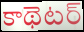
కాథెటర్